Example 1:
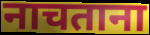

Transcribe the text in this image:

नाचताना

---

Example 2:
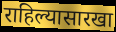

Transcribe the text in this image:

राहिल्यासारखा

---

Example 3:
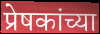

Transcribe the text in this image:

प्रेषकांच्या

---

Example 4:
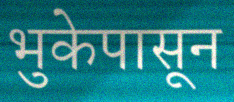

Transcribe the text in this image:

भुकेपासून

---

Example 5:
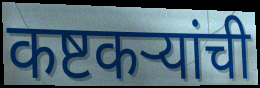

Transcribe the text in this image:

कष्टकऱ्यांची